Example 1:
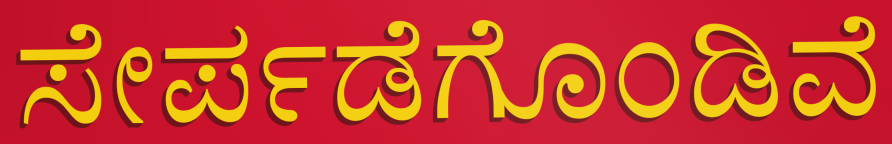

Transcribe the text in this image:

ಸೇರ್ಪಡೆಗೊಂಡಿವೆ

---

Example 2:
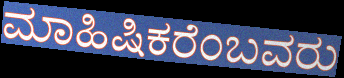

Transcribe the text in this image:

ಮಾಹಿಷಿಕರೆಂಬವರು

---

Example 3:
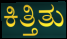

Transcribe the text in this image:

ಕಿತ್ತಿತು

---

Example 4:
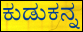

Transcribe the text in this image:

ಕುಡುಕನ್ನ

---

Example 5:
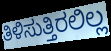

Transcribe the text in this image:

ತಿಳಿಸುತ್ತಿರಲಿಲ್ಲ